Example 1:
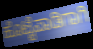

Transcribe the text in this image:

ಹೊಟ್ಟೆಪಾಡಿಗಾಗಿ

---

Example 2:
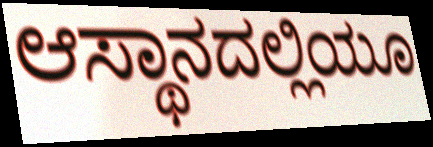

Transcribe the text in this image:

ಆಸ್ಥಾನದಲ್ಲಿಯೂ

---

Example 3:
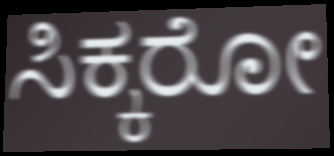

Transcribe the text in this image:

ಸಿಕ್ಕರೋ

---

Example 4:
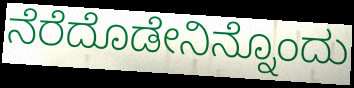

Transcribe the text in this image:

ನೆರೆದೊಡೇನಿನ್ನೊಂದು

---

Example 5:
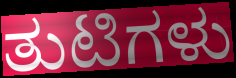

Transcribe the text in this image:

ತುಟಿಗಳು